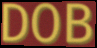
DOB